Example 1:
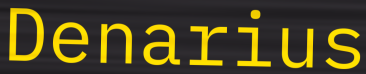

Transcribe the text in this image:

Denarius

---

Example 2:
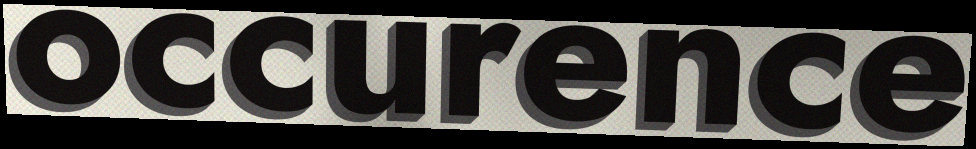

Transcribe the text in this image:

occurence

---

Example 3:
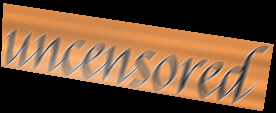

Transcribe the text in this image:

uncensored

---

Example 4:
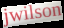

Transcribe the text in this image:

jwilson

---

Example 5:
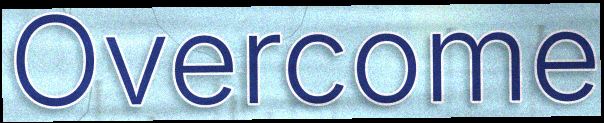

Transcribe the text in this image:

Overcome